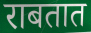
राबतात